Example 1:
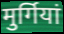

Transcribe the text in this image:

मुर्गियां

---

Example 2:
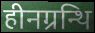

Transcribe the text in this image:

हीनग्रन्थि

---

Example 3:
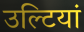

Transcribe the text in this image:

उल्‍टियां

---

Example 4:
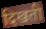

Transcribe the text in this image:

दिखती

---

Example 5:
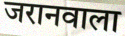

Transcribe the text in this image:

जरानवाला